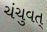
ચંચુવત્